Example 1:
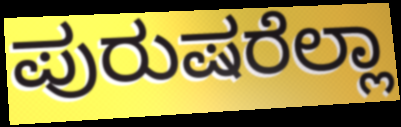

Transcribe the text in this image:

ಪುರುಷರೆಲ್ಲಾ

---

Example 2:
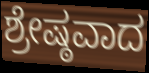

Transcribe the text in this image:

ಶ್ರೇಷ್ಠವಾದ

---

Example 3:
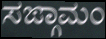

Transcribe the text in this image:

ಸಙ್ಗಾಮಂ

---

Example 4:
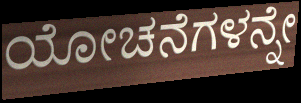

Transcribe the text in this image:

ಯೋಚನೆಗಳನ್ನೇ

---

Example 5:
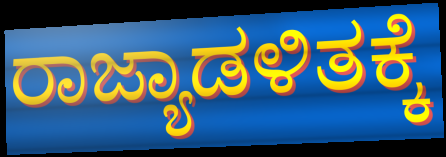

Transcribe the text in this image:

ರಾಜ್ಯಾಡಳಿತಕ್ಕೆ